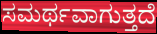
ಸಮರ್ಥವಾಗುತ್ತದೆ